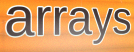
arrays